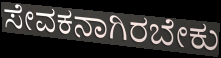
ಸೇವಕನಾಗಿರಬೇಕು